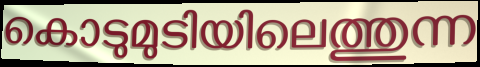
കൊടുമുടിയിലെത്തുന്ന